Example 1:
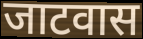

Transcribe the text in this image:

जाटवास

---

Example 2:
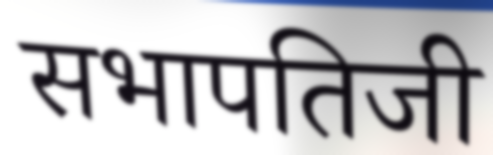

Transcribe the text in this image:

सभापतिजी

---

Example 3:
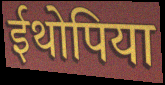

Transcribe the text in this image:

ईथोपिया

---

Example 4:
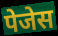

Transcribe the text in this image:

पेजेस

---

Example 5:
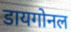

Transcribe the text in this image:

डायगोनल